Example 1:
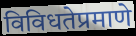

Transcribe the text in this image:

विविधतेप्रमाणे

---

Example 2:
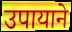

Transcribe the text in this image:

उपायाने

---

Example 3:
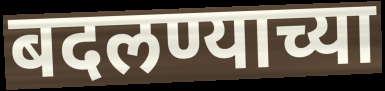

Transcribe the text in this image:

बदलण्याच्या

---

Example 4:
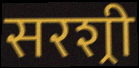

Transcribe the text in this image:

सरश्री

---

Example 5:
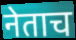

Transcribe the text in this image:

नेताच